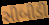
સીબીડી